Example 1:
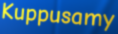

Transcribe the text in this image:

Kuppusamy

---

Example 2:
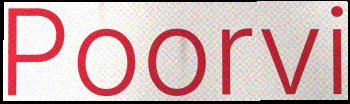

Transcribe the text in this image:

Poorvi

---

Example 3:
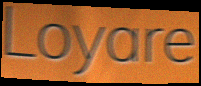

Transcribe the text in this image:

Loyare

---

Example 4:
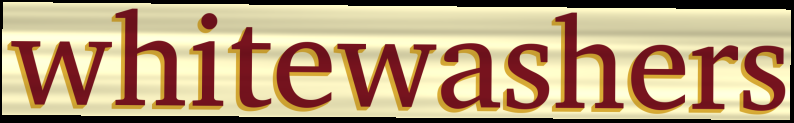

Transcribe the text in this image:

whitewashers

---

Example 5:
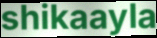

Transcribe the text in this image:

shikaayla